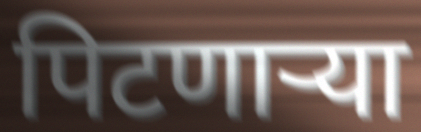
पिटणाऱ्या